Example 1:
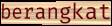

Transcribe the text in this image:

berangkat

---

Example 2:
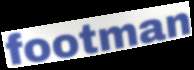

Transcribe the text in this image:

footman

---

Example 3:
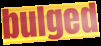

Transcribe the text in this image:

bulged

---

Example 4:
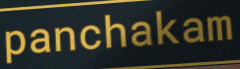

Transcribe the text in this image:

panchakam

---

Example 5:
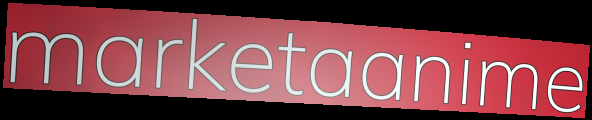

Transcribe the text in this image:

marketaanime